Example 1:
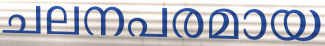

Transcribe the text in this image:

ചലനപരമായ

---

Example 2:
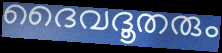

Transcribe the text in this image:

ദൈവദൂതരും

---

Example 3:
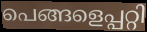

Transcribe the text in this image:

പെങ്ങളെപ്പറ്റി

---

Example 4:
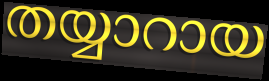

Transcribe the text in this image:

തയ്യാറായ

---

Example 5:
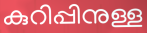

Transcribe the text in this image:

കുറിപ്പിനുള്ള